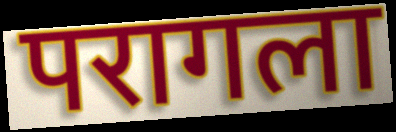
परागला